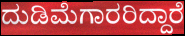
ದುಡಿಮೆಗಾರರಿದ್ದಾರೆ